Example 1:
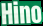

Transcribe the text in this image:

Hino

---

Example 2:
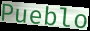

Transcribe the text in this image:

Pueblo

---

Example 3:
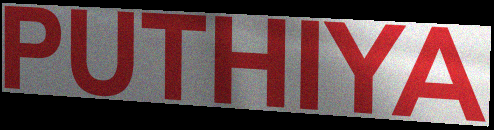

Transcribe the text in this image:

PUTHIYA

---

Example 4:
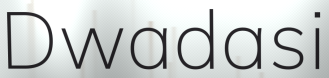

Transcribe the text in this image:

Dwadasi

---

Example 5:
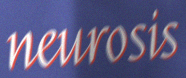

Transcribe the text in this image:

neurosis